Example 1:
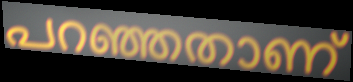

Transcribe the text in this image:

പറഞ്ഞതാണ്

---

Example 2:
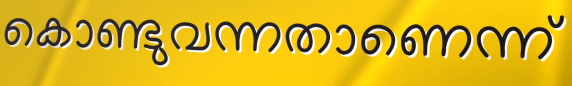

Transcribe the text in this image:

കൊണ്ടുവന്നതാണെന്ന്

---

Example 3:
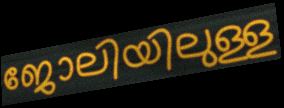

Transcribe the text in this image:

ജോലിയിലുള്ള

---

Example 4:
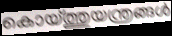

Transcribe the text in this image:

കൊയ്ത്തുയന്ത്രങ്ങൾ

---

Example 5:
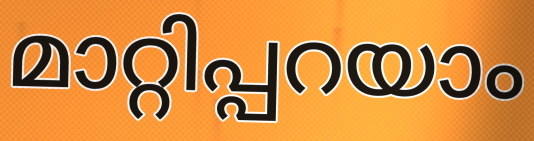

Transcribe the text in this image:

മാറ്റിപ്പറയാം